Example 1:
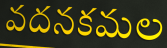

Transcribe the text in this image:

వదనకమల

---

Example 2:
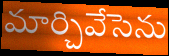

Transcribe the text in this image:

మార్చివేసెను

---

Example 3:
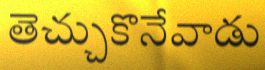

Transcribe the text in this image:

తెచ్చుకొనేవాడు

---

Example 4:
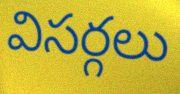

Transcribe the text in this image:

విసర్గలు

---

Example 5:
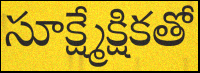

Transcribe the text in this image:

సూక్ష్మేక్షికతో